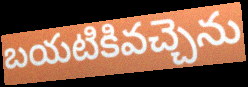
బయటికివచ్చెను